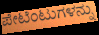
ಪೇಟೆಂಟುಗಳನ್ನು